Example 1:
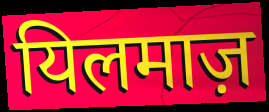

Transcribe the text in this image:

यिलमाज़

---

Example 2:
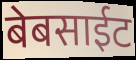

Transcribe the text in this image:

बेबसाईट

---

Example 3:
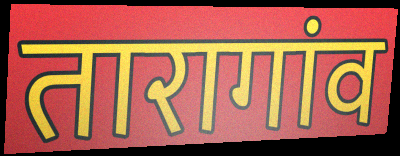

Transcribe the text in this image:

तारागांव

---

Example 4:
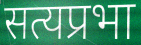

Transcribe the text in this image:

सत्यप्रभा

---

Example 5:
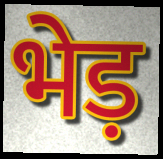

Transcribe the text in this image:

भेड़